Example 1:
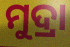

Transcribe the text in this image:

ମୁଦ୍ରା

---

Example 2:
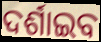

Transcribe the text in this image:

ଦର୍ଶାଇବ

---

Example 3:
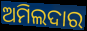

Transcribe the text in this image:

ଅମିଲଦାର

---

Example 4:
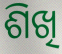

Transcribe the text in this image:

ଶିଖି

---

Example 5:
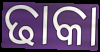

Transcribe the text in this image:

ଢାକା